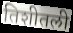
तिशीतली